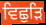
ਵਿਛੁੜਿ